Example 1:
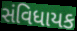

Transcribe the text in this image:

સંવિધાયક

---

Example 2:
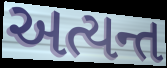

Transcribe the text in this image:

અત્યન્ત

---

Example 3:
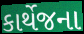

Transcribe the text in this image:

કાર્થેજના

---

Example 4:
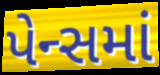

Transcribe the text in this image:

પેન્સમાં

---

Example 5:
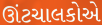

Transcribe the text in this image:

ઊંટચાલકોએ